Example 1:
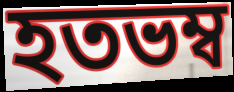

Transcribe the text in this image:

হতভম্ব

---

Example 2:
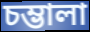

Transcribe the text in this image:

চম্ভালা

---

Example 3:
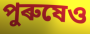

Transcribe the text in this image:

পুৰুষেও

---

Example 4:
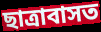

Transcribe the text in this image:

ছাত্ৰাবাসত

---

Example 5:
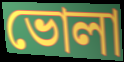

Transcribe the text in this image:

ভোলা